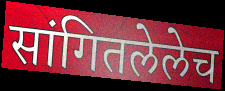
सांगितलेलेच